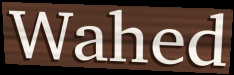
Wahed